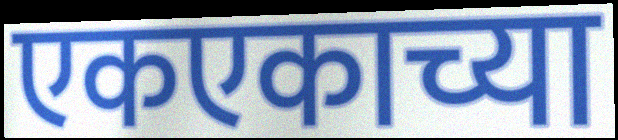
एकएकाच्या